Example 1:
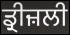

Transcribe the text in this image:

ਡ੍ਰੀਜ਼ਲੀ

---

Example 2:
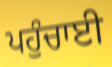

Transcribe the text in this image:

ਪਹੁੰਚਾਈ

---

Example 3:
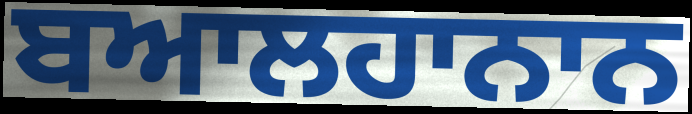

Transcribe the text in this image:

ਬਆਲਹਾਨਾਨ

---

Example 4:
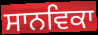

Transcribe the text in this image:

ਸਾਨਵਿਕਾ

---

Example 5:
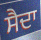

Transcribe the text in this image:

ਸੈਦਾ